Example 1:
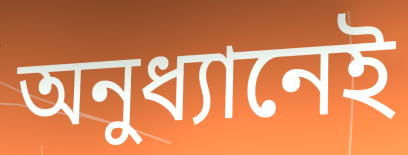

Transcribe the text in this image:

অনুধ্যানেই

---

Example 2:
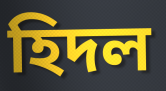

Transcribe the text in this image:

হিদল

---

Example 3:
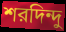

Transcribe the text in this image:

শরদিন্দু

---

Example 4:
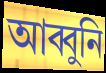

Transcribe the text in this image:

আব্বুনি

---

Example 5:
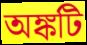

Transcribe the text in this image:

অঙ্কটি